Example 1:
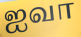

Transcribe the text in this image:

ஐவா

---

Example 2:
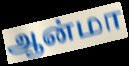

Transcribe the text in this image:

ஆன்மா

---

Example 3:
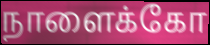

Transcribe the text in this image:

நாளைக்கோ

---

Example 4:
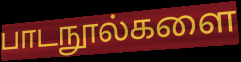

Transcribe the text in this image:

பாடநூல்களை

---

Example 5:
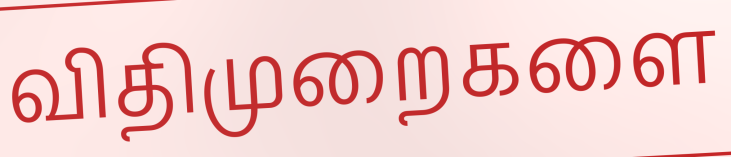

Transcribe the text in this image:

விதிமுறைகளை